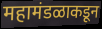
महामंडळाकडून